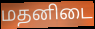
மதனிடை